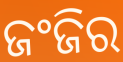
ଜଂଜିର